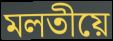
মলতীয়ে